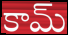
కామ్